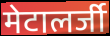
मेटालर्जी